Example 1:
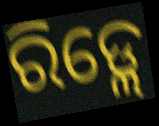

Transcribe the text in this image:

ରିଡ୍ଲେ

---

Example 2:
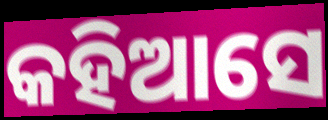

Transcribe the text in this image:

କହିଆସେ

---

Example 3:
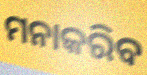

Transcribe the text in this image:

ମନାକରିବ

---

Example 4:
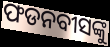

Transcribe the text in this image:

ଫଡନବୀସଙ୍କୁ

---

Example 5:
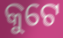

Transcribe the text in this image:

କୁଟେ